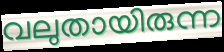
വലുതായിരുന്ന